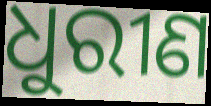
ଧୁରୀଣ